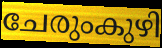
ചേരുംകുഴി